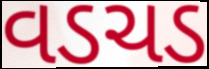
વડચડ